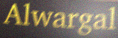
Alwargal